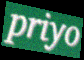
priyo